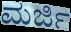
ಮರ್ಜಿ